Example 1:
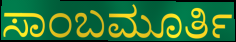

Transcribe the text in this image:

ಸಾಂಬಮೂರ್ತಿ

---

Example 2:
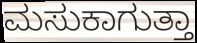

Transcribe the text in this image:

ಮಸುಕಾಗುತ್ತಾ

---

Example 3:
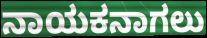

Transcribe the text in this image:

ನಾಯಕನಾಗಲು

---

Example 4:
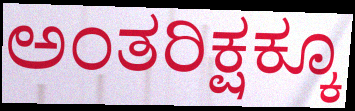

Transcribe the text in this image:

ಅಂತರಿಕ್ಷಕ್ಕೂ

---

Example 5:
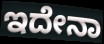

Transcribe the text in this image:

ಇದೇನಾ